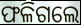
ଫଳିଗଲେ